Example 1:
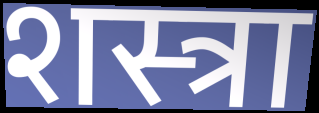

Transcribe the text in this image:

शस्त्रा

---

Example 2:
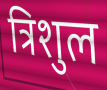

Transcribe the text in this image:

त्रिशुल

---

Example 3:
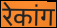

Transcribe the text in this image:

रेकांग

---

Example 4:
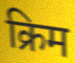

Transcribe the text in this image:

क्रिम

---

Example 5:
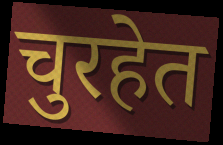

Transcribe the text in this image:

चुरहेत